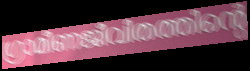
ഗ്രാമീണജീവിതത്തിന്റെ